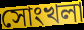
সোংখলা